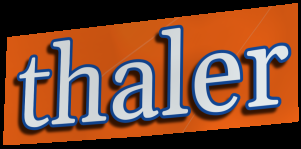
thaler